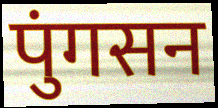
पुंगसन